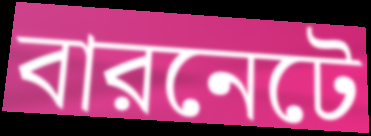
বারনেটে